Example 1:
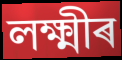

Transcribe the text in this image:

লক্ষ্মীৰ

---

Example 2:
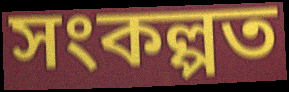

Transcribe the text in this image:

সংকল্পত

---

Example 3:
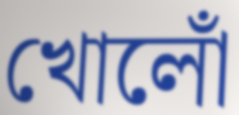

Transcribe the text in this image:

খোলোঁ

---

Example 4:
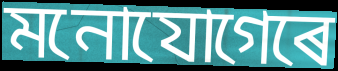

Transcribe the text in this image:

মনোযোগেৰে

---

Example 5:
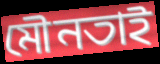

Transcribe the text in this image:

মৌনতাই